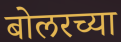
बोलरच्या